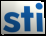
sti